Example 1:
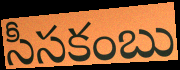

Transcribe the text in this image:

సీసకంబు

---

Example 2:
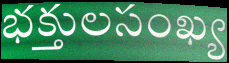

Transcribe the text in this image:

భక్తులసంఖ్య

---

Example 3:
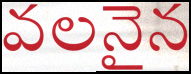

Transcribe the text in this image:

వలనైన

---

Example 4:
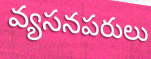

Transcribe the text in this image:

వ్యసనపరులు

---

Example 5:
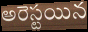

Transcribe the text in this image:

అరెస్టయిన